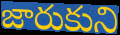
జారుకుని